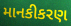
માનકીકરણ